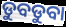
ଡୁବଡୁବା